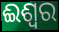
ଈଶ୍ୱର